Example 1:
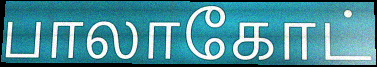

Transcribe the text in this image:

பாலாகோட்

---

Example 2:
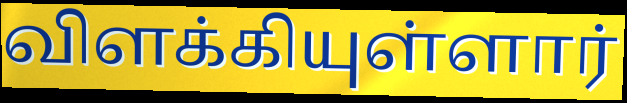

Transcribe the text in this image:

விளக்கியுள்ளார்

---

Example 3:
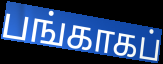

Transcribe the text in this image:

பங்காகப்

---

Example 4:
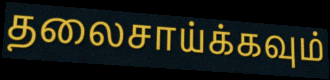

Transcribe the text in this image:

தலைசாய்க்கவும்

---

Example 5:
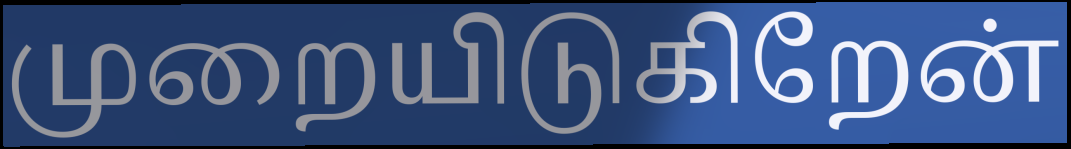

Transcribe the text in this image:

முறையிடுகிறேன்